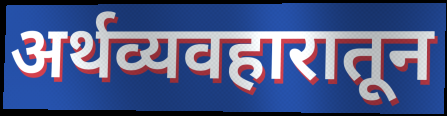
अर्थव्यवहारातून